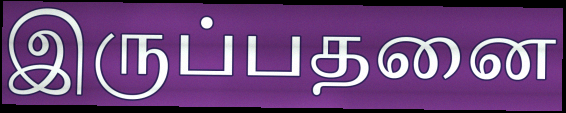
இருப்பதனை